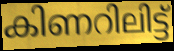
കിണറിലിട്ട്